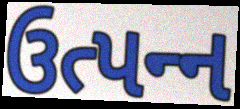
ઉત્પન્‍ન